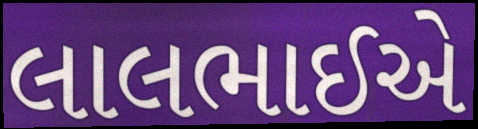
લાલભાઈએ